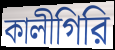
কালীগিরি